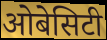
ओबेसिटी